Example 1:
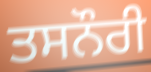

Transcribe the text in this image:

ਤਸਨੌਰੀ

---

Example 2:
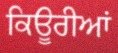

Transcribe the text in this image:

ਕਿਊਰੀਆਂ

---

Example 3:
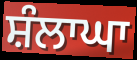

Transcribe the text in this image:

ਸ਼ੰਲਾਘਾ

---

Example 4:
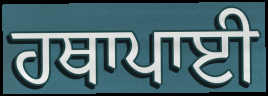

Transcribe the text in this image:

ਹਥਾਪਾਈ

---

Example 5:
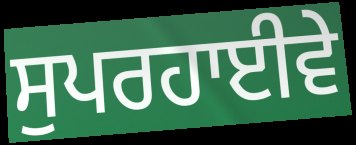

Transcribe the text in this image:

ਸੁਪਰਹਾਈਵੇ